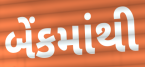
બેંકમાંથી